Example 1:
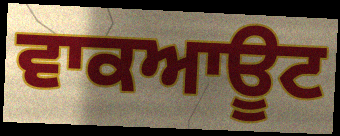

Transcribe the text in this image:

ਵਾਕਆਊਟ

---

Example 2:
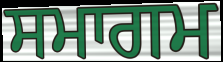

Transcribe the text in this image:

ਸਮਾਗਮ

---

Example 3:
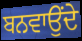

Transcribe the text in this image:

ਬਨਵਾਉਂਦੇ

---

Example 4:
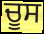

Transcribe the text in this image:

ਚੂਸ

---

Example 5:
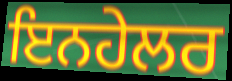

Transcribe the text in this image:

ਇਨਹੇਲਰ